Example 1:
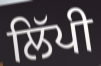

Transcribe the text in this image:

ਲਿੱਪੀ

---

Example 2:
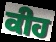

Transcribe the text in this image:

ਕੀਹ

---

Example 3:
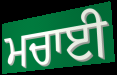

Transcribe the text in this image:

ਮਚਾਈ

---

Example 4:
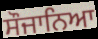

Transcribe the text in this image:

ਸੌਜਾਨਿਆ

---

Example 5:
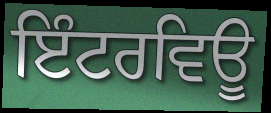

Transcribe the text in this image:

ਇੰਟਰਵਿਊ